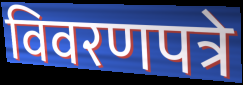
विवरणपत्रे